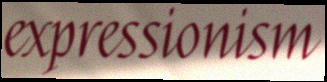
expressionism